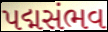
પદ્મસંભવ